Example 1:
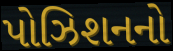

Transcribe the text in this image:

પોઝિશનનો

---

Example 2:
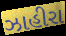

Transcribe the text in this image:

ઝાહીરા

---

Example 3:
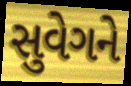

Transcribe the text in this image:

સુવેગને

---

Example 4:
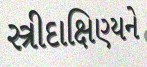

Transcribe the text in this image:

સ્ત્રીદાક્ષિણ્યને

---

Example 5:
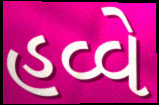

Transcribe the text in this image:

હવ્વે